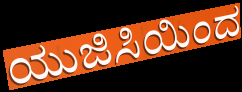
ಯುಜಿಸಿಯಿಂದ